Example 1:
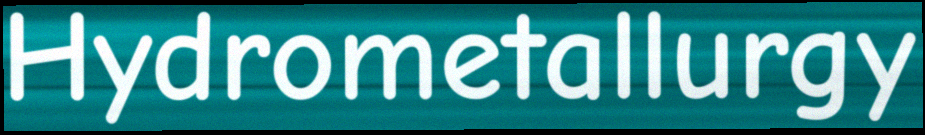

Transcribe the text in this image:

Hydrometallurgy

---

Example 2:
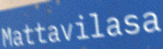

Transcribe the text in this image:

Mattavilasa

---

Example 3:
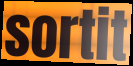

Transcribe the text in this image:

sortit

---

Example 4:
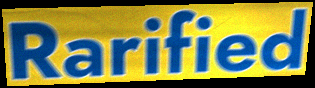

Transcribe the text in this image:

Rarified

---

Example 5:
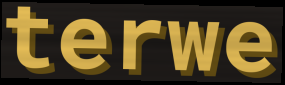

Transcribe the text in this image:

terwe